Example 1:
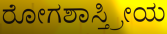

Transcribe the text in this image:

ರೋಗಶಾಸ್ತ್ರೀಯ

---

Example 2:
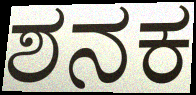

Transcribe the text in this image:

ಶನಕ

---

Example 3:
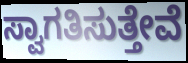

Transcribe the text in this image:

ಸ್ವಾಗತಿಸುತ್ತೇವೆ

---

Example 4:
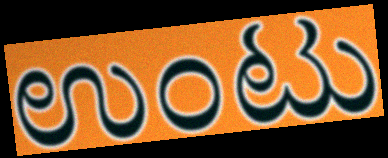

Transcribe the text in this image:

ಉಂಟು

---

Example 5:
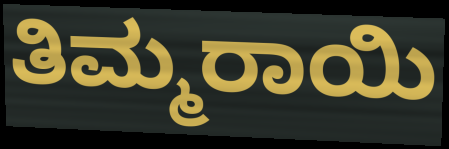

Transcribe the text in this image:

ತಿಮ್ಮರಾಯಿ